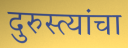
दुरुस्त्यांचा